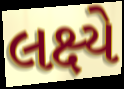
લક્ષ્યે